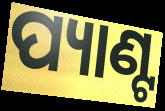
ପ୍ୟାଣ୍ଟ